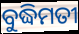
ବୁଦ୍ଧିମତୀ